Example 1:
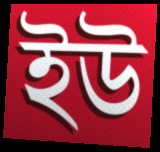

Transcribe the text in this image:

ইউ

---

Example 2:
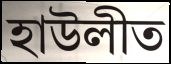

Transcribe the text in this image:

হাউলীত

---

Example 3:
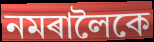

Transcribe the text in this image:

নমৰালৈকে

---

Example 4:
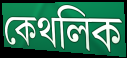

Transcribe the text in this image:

কেথলিক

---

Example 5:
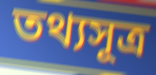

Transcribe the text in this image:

তথ্যসূত্ৰ